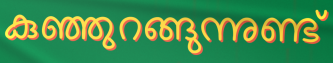
കുഞ്ഞുറങ്ങുന്നുണ്ട്